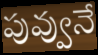
పువ్వునే